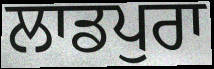
ਲਾਡਪੁਰਾ